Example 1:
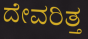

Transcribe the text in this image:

ದೇವರಿತ್ತ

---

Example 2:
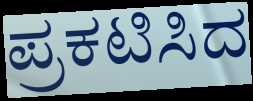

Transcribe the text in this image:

ಪ್ರಕಟಿಸಿದ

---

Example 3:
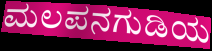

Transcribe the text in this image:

ಮಲಪನಗುಡಿಯ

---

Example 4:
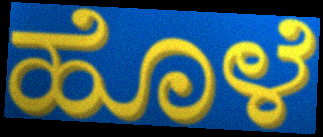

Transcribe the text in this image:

ಹೊಳೆ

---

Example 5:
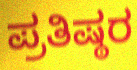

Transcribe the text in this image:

ಪ್ರತಿಷ್ಠರ